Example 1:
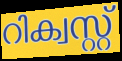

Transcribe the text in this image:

റിക്വസ്റ്റ്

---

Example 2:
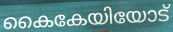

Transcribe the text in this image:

കൈകേയിയോട്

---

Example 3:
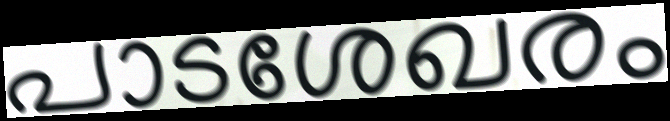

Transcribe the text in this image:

പാടശേഖരം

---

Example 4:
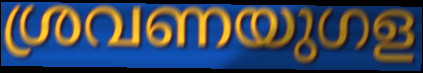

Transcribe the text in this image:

ശ്രവണയുഗള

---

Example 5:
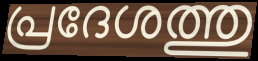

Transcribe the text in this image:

പ്രദേശത്തു